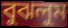
বুঝলুম